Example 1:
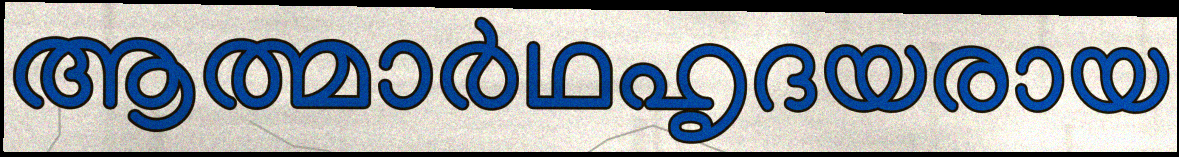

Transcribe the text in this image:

ആത്മാർഥഹൃദയരായ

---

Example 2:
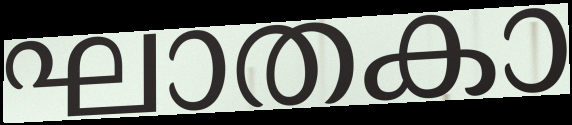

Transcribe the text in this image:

ഘാതകാ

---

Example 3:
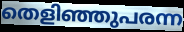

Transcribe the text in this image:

തെളിഞ്ഞുപരന്ന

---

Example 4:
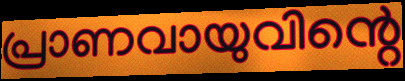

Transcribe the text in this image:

പ്രാണവായുവിന്റെ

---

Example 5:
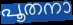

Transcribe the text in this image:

പൂതനാ